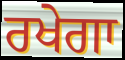
ਰਖੇਗਾ